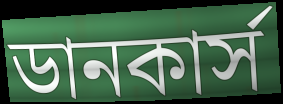
ডানকার্স